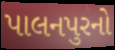
પાલનપુરનો